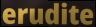
erudite